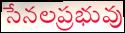
సేనలప్రభువు